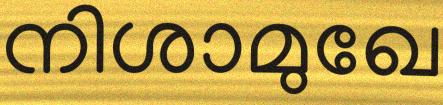
നിശാമുഖേ